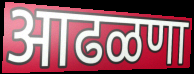
आढळणा